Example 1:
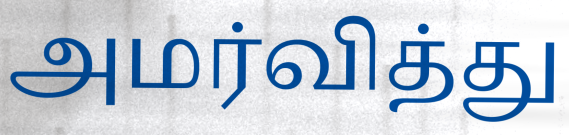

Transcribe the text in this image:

அமர்வித்து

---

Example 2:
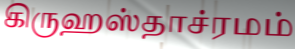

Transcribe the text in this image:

கிருஹஸ்தாச்ரமம்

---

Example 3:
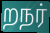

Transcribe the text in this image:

றநர்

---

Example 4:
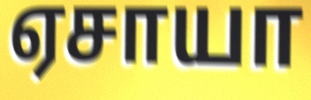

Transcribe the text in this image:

ஏசாயா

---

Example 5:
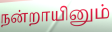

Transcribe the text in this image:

நன்றாயினும்